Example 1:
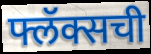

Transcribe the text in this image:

फ्लॅक्सची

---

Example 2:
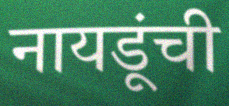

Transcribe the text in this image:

नायडूंची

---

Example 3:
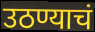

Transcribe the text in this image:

उठण्याचं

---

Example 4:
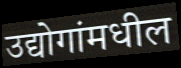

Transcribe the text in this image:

उद्योगांमधील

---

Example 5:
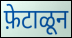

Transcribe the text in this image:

फ़ेटाळून